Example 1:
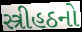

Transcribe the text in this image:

સ્ત્રીહઠનો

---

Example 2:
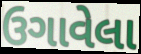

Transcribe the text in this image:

ઉગાવેલા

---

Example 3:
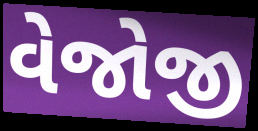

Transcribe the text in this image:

વેજોજી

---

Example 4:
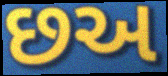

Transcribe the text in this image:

છઅ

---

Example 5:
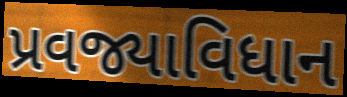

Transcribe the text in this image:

પ્રવજ્યાવિધાન